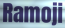
Ramoji